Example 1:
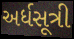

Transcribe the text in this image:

અર્ધસૂત્રી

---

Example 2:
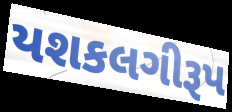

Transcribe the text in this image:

યશકલગીરૂપ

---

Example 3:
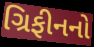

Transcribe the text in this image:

ગ્રિફીનનો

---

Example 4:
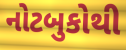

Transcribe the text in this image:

નોટબુકોથી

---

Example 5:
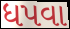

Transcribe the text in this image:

ધપવા